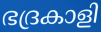
ഭദ്രകാളി